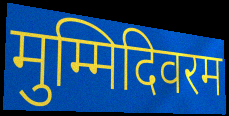
मुम्मिदिवरम